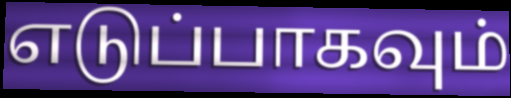
எடுப்பாகவும்